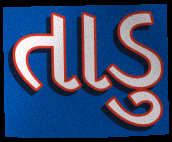
તાડુ